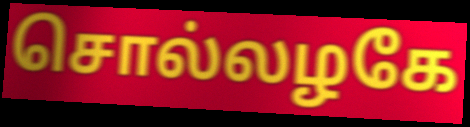
சொல்லழகே